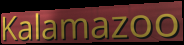
Kalamazoo